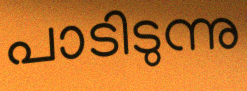
പാടിടുന്നു